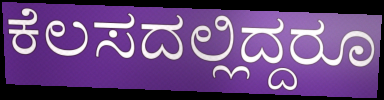
ಕೆಲಸದಲ್ಲಿದ್ದರೂ